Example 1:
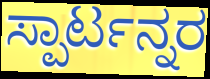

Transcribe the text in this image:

ಸ್ಪಾರ್ಟನ್ನರ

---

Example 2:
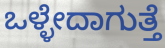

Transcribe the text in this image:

ಒಳ್ಳೇದಾಗುತ್ತೆ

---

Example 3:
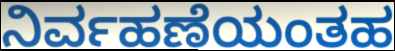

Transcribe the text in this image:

ನಿರ್ವಹಣೆಯಂತಹ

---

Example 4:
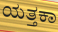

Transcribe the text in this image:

ಯತ್ತಕಾ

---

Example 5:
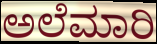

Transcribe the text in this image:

ಅಲೆಮಾರಿ